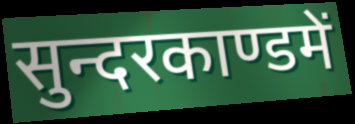
सुन्दरकाण्डमें